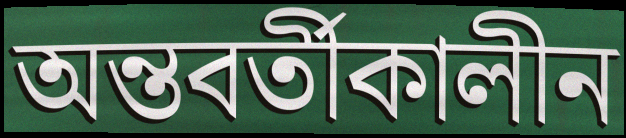
অন্তবর্তীকালীন